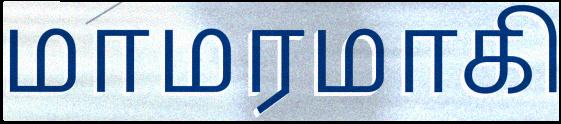
மாமரமாகி